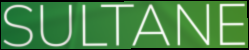
SULTANE